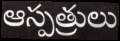
ఆస్పత్రులు